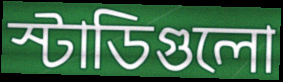
স্টাডিগুলো